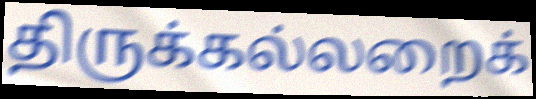
திருக்கல்லறைக்